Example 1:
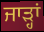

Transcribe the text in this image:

ਜਾੜ੍ਹਾਂ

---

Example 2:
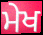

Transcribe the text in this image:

ਮੇਖ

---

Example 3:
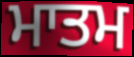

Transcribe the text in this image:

ਮਾਤਮ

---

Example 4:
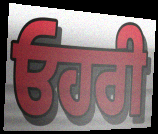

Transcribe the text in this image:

ਓਹਰੀ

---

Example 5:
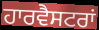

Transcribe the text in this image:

ਹਾਰਵੈਸਟਰਾਂ